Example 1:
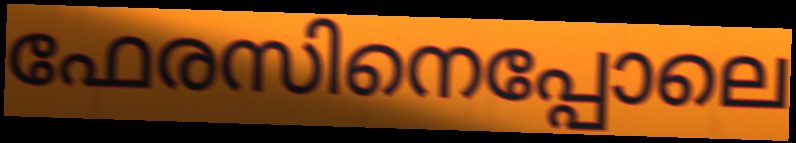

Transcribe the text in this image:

ഫേരസിനെപ്പോലെ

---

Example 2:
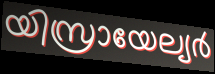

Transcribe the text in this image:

യിസ്രായേല്യർ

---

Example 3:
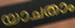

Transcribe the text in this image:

യാചതാം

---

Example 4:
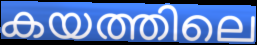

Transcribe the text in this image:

കയത്തിലെ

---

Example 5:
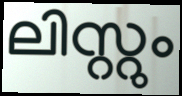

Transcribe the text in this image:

ലിസ്റ്റും